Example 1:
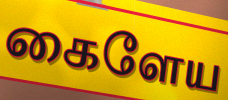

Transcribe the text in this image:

கைளேய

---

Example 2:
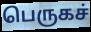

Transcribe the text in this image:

பெருகச்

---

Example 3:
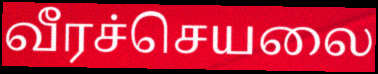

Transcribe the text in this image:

வீரச்செயலை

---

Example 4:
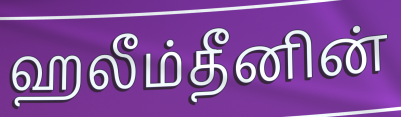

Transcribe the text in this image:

ஹலீம்தீனின்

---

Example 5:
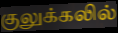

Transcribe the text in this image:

குலுக்கலில்